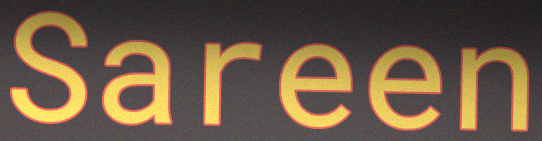
Sareen